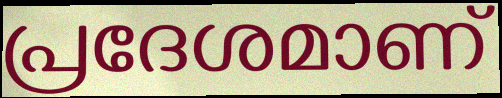
പ്രദേശമാണ്